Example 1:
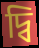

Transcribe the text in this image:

দ্বি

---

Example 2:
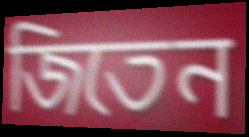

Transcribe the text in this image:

জিতেন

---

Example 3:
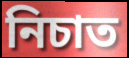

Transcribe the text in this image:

নিচাত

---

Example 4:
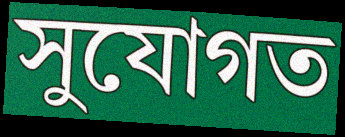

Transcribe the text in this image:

সুযোগত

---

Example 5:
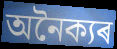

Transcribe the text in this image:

অনৈক্যৰ